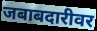
जबाबदारीवर